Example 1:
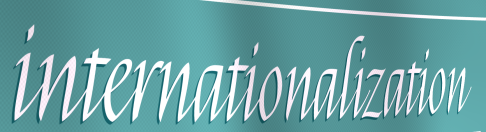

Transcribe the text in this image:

internationalization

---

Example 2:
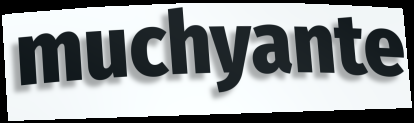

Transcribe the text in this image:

muchyante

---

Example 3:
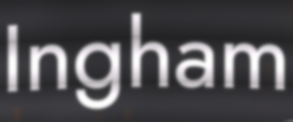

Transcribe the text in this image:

Ingham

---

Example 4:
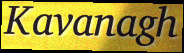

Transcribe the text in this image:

Kavanagh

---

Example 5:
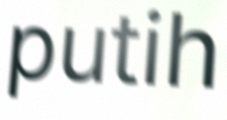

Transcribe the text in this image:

putih